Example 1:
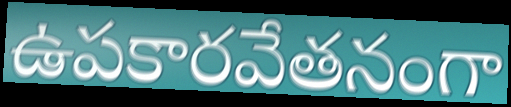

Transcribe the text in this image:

ఉపకారవేతనంగా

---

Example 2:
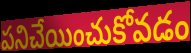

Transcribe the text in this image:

పనిచేయించుకోవడం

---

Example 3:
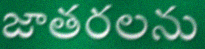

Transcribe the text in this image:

జాతరలను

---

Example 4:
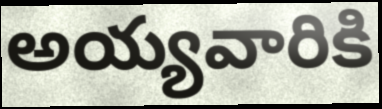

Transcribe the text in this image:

అయ్యవారికి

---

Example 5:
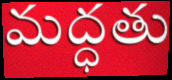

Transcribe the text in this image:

మద్ధతు